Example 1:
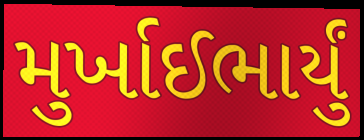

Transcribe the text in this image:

મુર્ખાઈભાર્યું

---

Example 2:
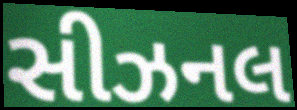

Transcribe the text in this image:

સીઝનલ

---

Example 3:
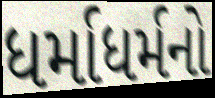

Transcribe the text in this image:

ધર્માધર્મનો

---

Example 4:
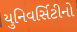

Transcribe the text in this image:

યુનિવર્સિટીનો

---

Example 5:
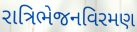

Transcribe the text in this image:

રાત્રિભેજનવિરમણ